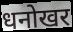
धनोखर